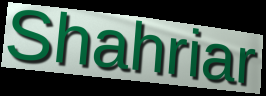
Shahriar